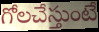
గోలచేస్తుంటే